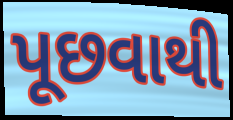
પૂછવાથી